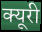
क्यूरी